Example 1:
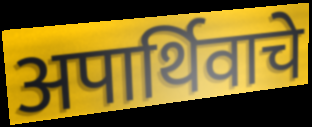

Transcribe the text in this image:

अपार्थिवाचे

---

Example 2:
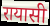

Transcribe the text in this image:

रायासी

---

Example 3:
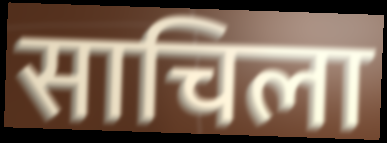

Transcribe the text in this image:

साचिला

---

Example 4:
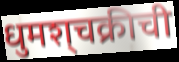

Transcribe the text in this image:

धुमश्चक्रीची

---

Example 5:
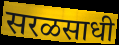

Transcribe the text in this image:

सरळसाधी